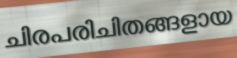
ചിരപരിചിതങ്ങളായ